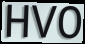
HVO